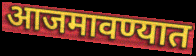
आजमावण्यात